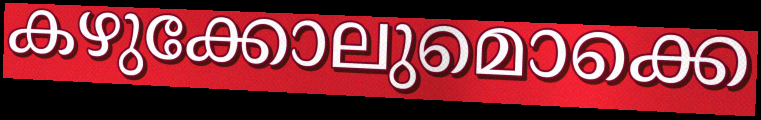
കഴുക്കോലുമൊക്കെ